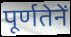
पूर्णतेनें